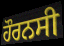
ਹੌਰਨਸੀ